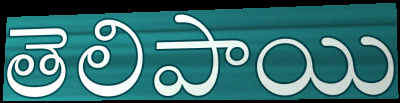
తెలిపాయి